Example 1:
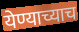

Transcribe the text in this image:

येण्याच्याच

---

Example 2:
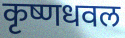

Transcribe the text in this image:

कृष्णधवल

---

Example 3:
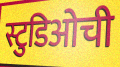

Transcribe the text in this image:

स्टुडिओची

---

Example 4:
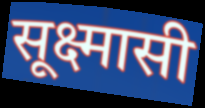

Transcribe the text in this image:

सूक्ष्मासी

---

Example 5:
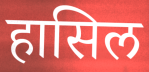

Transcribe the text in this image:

हासिल